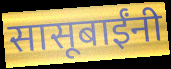
सासूबाईंनी